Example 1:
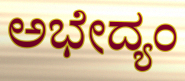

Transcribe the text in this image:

ಅಭೇದ್ಯಂ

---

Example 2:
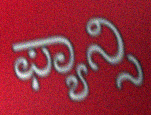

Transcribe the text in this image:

ಫ್ಯಾನ್ಸಿ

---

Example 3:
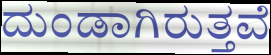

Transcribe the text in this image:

ದುಂಡಾಗಿರುತ್ತವೆ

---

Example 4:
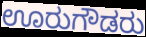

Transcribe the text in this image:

ಊರುಗೌಡರು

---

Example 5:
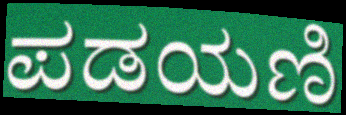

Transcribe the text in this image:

ಪಡಯಣಿ